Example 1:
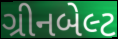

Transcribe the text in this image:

ગ્રીનબેલ્ટ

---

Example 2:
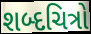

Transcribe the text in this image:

શબ્દચિત્રો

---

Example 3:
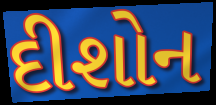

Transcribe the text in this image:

દીશોન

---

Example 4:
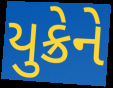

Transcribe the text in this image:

યુક્રેને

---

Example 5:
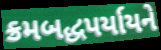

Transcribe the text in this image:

ક્રમબદ્ધપર્યાયને